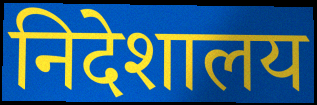
निदेशालय